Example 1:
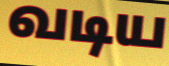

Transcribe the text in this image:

வடிய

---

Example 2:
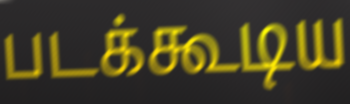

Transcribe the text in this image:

படக்கூடிய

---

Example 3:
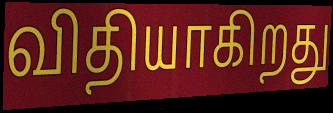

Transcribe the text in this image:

விதியாகிறது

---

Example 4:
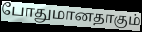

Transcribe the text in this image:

போதுமானதாகும்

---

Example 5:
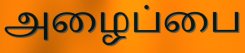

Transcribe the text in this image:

அழைப்பை